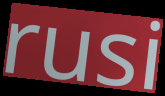
rusi